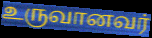
உருவானவர்